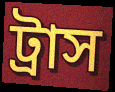
ট্রাস